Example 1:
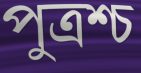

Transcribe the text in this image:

পুত্রশ্চ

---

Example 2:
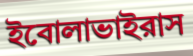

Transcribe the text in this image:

ইবোলাভাইরাস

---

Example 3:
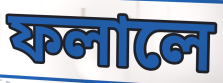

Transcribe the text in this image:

ফলালে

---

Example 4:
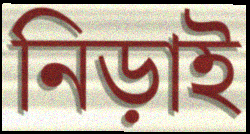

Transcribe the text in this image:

নিড়াই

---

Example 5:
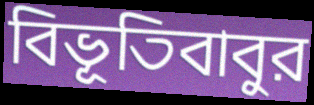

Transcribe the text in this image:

বিভূতিবাবুর